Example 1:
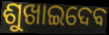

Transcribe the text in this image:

ଶୁଖାଇଦେବ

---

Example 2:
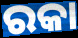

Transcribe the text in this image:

ରକା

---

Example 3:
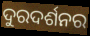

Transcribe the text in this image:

ଦୁରଦର୍ଶନର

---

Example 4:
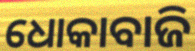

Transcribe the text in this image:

ଧୋକାବାଜି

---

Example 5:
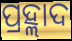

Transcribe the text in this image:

ପ୍ରହ୍ଲାଦ